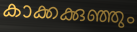
കാക്കക്കുഞ്ഞും